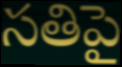
సతిపై